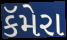
કૅમેરા